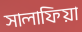
সালাফিয়া